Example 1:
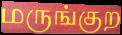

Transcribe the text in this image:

மருங்குற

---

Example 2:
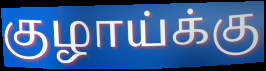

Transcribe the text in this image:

குழாய்க்கு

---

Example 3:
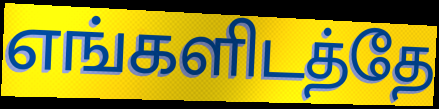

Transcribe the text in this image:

எங்களிடத்தே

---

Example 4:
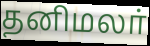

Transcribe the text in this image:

தனிமலர்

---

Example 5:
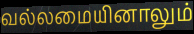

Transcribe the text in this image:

வல்லமையினாலும்